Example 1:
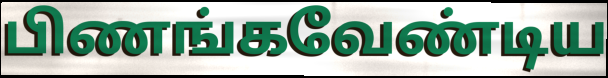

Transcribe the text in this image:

பிணங்கவேண்டிய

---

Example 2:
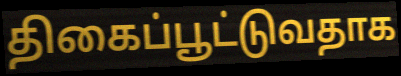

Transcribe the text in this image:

திகைப்பூட்டுவதாக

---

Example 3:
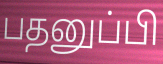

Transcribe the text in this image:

பதனுப்பி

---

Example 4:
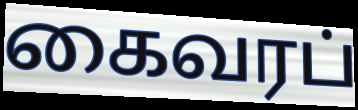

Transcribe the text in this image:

கைவரப்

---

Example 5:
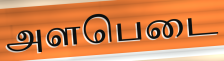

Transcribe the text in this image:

அளபெடை